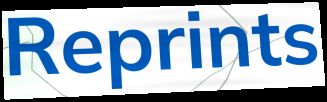
Reprints